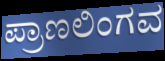
ಪ್ರಾಣಲಿಂಗವ